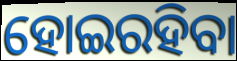
ହୋଇରହିବା